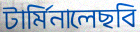
টার্মিনালেছবি